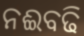
ନଈବଢି